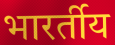
भारर्तीय